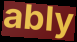
ably